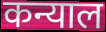
कन्याल